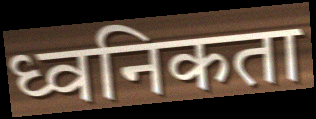
ध्वनिकता